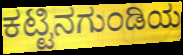
ಕಟ್ಟಿನಗುಂಡಿಯ